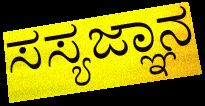
ಸಸ್ಯಜ್ಞಾನ